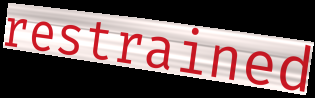
restrained